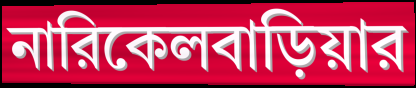
নারিকেলবাড়িয়ার